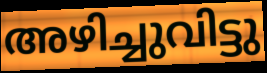
അഴിച്ചുവിട്ടു